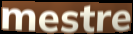
mestre